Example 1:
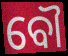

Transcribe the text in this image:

ବୌ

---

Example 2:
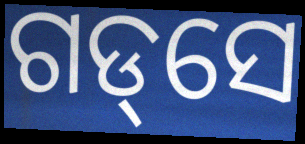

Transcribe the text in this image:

ଗଡ୍‌ସେ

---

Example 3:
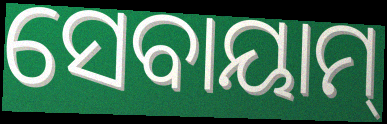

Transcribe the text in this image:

ସେବାୟାମ୍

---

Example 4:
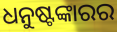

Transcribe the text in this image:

ଧନୁଷ୍ଟଙ୍କାରର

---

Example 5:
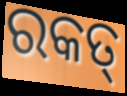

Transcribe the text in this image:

ରକତ୍